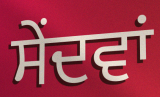
ਸੇਂਦਵਾਂ